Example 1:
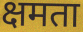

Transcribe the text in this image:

क्षमता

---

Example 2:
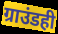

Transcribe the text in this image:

ग्राउंडही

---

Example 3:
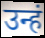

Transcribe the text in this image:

उन्हं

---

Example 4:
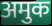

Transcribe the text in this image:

अमुक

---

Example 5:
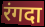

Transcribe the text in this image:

रंगदा